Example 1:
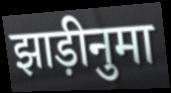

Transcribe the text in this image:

झाड़ीनुमा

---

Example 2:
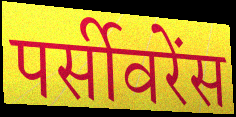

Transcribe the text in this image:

पर्सीवरेंस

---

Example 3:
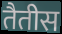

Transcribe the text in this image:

तैतीस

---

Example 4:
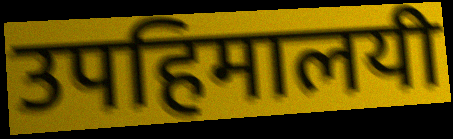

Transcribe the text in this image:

उपहिमालयी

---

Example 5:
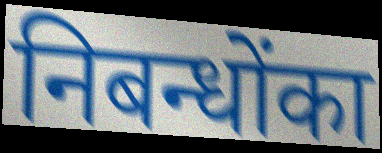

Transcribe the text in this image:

निबन्धोंका